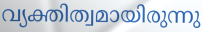
വ്യക്തിത്വമായിരുന്നു